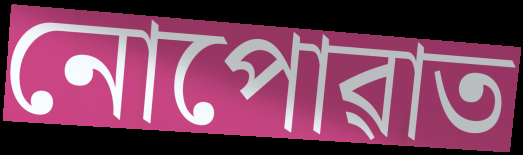
নোপোৱাত